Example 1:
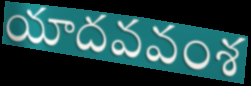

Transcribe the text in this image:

యాదవవంశ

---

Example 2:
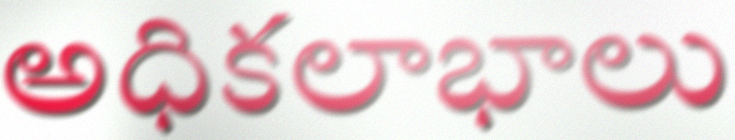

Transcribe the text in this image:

అధికలాభాలు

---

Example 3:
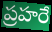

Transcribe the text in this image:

ప్రహరే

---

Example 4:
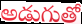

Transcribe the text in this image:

అడుగుతో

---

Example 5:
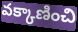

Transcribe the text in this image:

వక్కాణించి